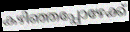
കഴിഞ്ഞപ്പോഴേക്ക്